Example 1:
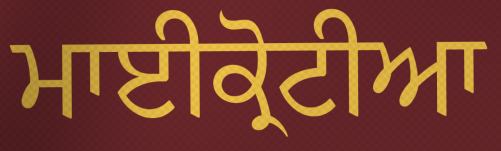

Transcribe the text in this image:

ਮਾਈਕ੍ਰੋਟੀਆ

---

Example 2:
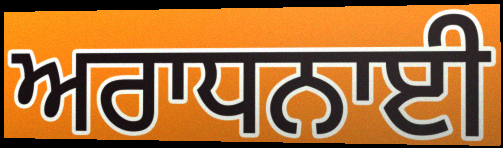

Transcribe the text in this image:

ਅਰਾਧਨਾਈ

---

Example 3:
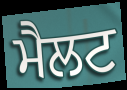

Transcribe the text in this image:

ਮੈਲਟ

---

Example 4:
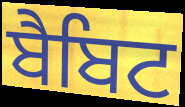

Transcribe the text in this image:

ਬੈਬਿਟ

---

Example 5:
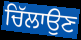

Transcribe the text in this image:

ਚਿੱਲਾਉਣ